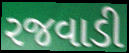
રજવાડી